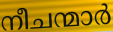
നീചന്മാർ